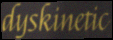
dyskinetic